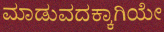
ಮಾಡುವದಕ್ಕಾಗಿಯೇ